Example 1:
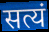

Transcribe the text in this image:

सत्यं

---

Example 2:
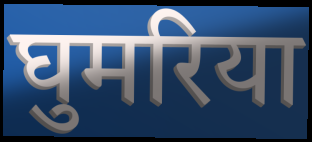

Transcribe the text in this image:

घुमरिया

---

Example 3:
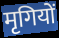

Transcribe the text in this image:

मृगियों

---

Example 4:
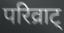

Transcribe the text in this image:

परिव्राट्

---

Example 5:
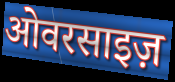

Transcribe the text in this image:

ओवरसाइज़